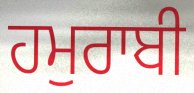
ਹਮੁਰਾਬੀ